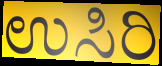
ಉಸಿರಿ